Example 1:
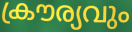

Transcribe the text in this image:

ക്രൗര്യവും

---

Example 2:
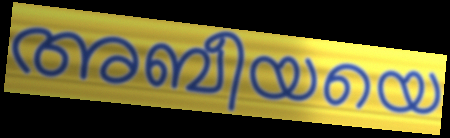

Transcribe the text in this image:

അബീയയെ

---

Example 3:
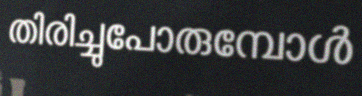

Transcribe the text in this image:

തിരിച്ചുപോരുമ്പോൾ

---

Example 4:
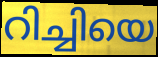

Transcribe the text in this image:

റിച്ചിയെ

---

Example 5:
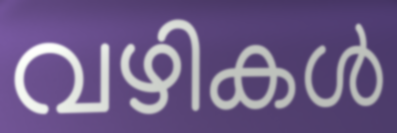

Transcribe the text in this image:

വഴികൾ